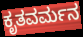
ಕೃತವರ್ಮನ